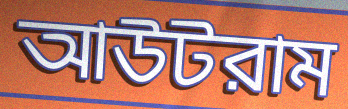
আউটরাম